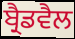
ਬ੍ਰੈਡਵੈਲ